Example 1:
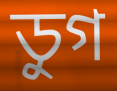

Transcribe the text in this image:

ডুগ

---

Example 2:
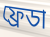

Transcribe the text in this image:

ফ্রেডা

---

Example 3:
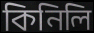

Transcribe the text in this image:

কিনিলি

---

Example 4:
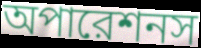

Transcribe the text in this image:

অপারেশনস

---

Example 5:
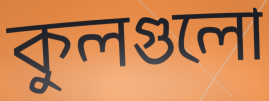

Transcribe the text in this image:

কুলগুলো